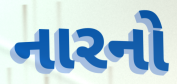
નારનો